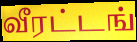
வீரட்டங்